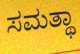
ಸಮತ್ಥಾ